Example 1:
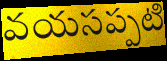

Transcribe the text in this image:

వయసప్పటి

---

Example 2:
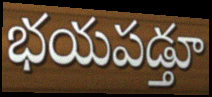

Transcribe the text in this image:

భయపడ్తూ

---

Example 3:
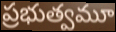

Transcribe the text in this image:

ప్రభుత్వమూ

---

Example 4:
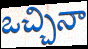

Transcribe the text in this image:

ఒచ్చినా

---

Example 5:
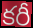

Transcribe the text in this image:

కరీ